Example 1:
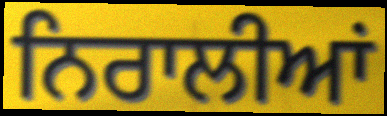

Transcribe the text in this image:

ਨਿਰਾਲੀਆਂ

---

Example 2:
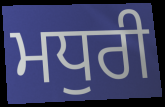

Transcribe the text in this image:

ਮਧੁਰੀ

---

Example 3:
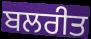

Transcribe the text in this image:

ਬਲਰੀਤ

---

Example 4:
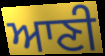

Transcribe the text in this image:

ਆਣੀ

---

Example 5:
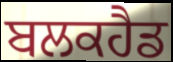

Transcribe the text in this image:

ਬਲਕਹੈਡ